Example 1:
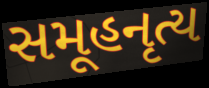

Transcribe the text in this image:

સમૂહનૃત્ય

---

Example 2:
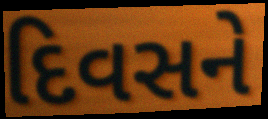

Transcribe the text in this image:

દિવસને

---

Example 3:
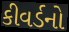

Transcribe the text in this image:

કીવર્ડનો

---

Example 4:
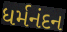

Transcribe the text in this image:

ધર્મનંદન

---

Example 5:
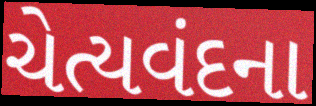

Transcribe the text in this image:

ચેત્યવંદના